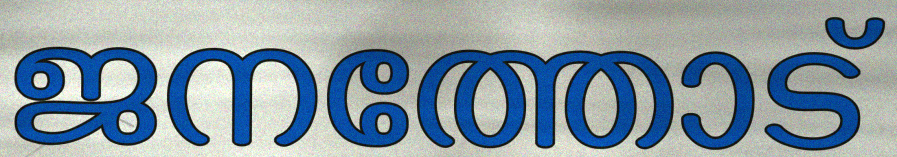
ജനത്തോട്